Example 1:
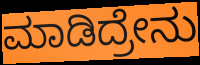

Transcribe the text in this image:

ಮಾಡಿದ್ರೇನು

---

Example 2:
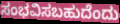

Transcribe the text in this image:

ಸಂಭವಿಸಬಹುದೆಂದು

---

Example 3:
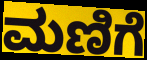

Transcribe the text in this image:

ಮಣಿಗೆ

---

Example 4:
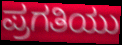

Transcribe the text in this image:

ಪ್ರಗತಿಯು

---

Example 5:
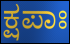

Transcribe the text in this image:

ಕ್ಷಪಾಃ